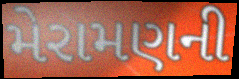
મેરામણની